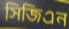
সিজিএন